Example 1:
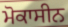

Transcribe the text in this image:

ਮੋਕਾਸੀਨ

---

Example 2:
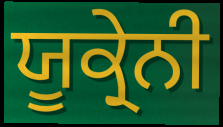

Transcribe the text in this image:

ਯੂਕ੍ਰੇਨੀ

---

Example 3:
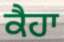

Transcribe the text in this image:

ਕੈਹਾ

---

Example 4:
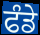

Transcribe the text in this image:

ਫੰਡੇ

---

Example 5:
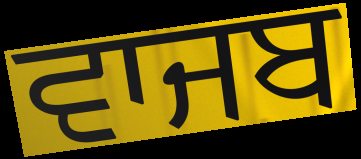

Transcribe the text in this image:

ਵਾਜਬ